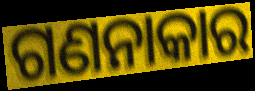
ଗଣନାକାର